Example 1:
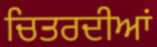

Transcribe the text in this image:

ਚਿਤਰਦੀਆਂ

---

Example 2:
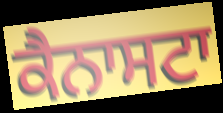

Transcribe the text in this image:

ਕੈਨਾਸਟਾ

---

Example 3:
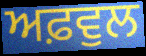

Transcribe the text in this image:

ਅਫ਼ਵੁਲ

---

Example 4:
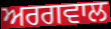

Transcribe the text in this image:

ਅਰਗਵਾਲ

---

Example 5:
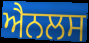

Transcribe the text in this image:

ਐਨਲਸ